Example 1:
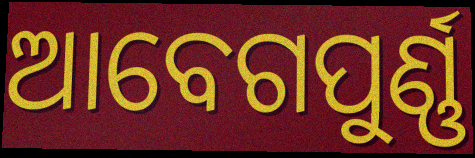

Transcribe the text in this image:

ଆବେଗପୁର୍ଣ୍ଣ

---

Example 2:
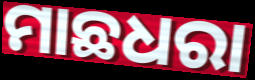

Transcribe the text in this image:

ମାଛଧରା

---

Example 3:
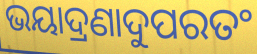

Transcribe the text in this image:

ଭୟାଦ୍ରଣାଦୁପରତଂ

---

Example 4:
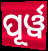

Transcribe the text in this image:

ପୂର୍ୱ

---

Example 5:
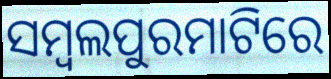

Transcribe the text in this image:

ସମ୍ବଲପୁରମାଟିରେ